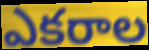
ఎకరాల